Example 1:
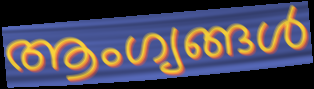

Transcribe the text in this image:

ആംഗ്യങ്ങൾ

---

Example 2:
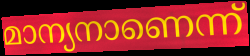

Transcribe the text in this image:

മാന്യനാണെന്ന്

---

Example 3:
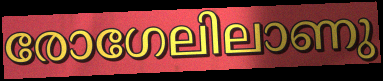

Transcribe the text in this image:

രോഗേലിലാണു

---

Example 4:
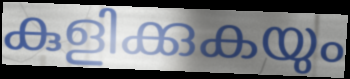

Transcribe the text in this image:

കുളിക്കുകയും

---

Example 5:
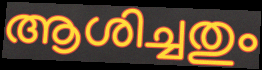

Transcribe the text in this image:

ആശിച്ചതും